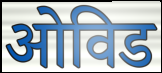
ओविड